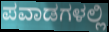
ಪವಾಡಗಳಲ್ಲಿ